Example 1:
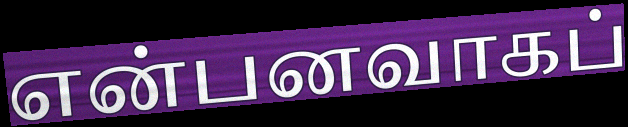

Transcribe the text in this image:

என்பனவாகப்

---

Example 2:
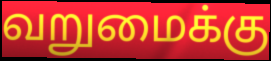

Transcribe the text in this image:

வறுமைக்கு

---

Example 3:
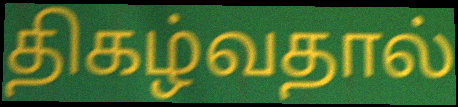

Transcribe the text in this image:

திகழ்வதால்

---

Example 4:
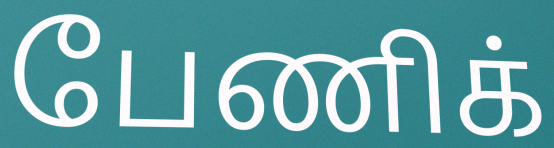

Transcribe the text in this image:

பேணிக்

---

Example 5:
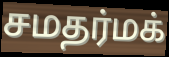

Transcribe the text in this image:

சமதர்மக்